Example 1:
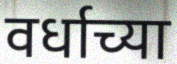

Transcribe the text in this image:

वर्धाच्या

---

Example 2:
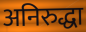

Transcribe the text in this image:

अनिरुद्धा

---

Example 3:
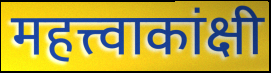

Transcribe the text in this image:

महत्त्वाकांक्षी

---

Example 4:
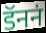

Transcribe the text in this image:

डॅननं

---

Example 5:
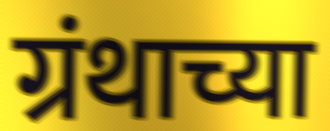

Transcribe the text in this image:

ग्रंथाच्या